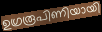
ഉഗ്രരൂപിണിയായി